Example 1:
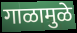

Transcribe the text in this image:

गाळामुळे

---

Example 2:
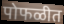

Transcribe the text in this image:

पोफळीत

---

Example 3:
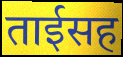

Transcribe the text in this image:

ताईसह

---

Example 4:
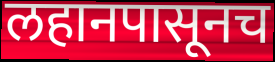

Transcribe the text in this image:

लहानपासूनच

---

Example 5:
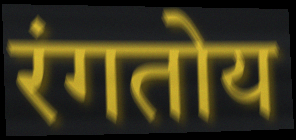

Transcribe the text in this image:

रंगतोय